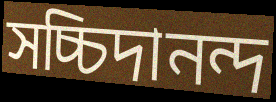
সচ্চিদানন্দ